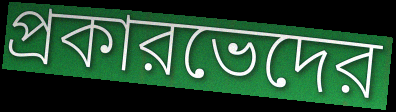
প্রকারভেদের